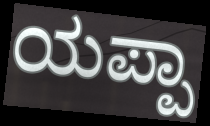
ಯಪ್ಪಾ